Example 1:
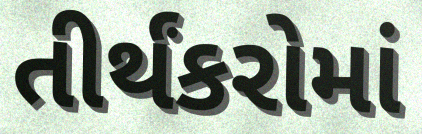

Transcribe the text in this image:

તીર્થંકરોમાં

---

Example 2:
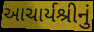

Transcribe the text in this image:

આચાર્યશ્રીનું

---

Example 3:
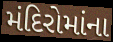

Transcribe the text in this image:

મંદિરોમાંના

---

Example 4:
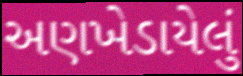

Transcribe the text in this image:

અણખેડાયેલું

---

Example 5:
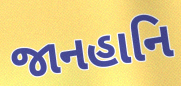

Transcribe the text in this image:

જાનહાનિ